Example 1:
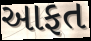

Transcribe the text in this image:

આફત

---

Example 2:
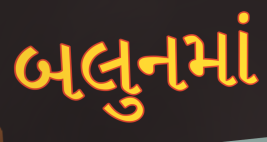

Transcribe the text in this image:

બલુનમાં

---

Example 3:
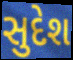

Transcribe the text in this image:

સુદેશ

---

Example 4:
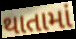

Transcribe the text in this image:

થાતામાં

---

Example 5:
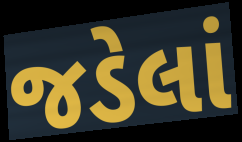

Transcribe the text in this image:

જડેલાં